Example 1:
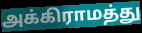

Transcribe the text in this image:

அக்கிராமத்து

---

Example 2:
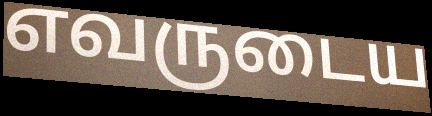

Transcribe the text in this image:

எவருடைய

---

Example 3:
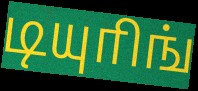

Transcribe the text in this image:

டியுரிங்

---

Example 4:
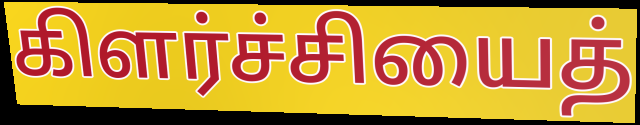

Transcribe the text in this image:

கிளர்ச்சியைத்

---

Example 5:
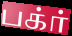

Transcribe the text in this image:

பக்ர்